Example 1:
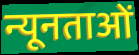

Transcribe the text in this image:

न्यूनताओं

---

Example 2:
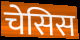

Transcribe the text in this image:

चेसिस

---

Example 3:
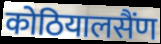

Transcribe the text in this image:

कोठियालसैंण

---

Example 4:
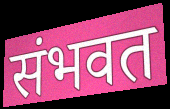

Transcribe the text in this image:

संभवत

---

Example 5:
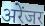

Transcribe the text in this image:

अरेंजर